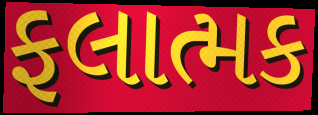
ફલાત્મક